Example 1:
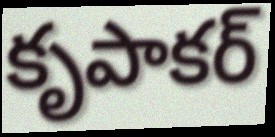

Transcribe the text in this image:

కృపాకర్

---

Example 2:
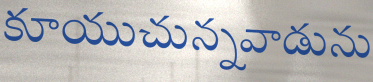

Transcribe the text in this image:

కూయుచున్నవాడును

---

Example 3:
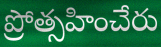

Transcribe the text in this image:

ప్రోత్సహించేరు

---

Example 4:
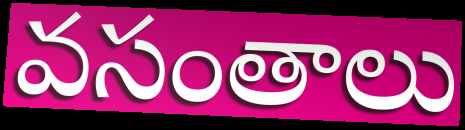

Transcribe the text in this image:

వసంతాలు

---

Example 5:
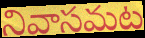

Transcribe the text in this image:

నివాసమట